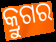
କ୍ରୁଗର